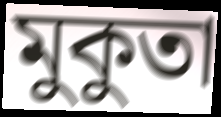
মুকুতা